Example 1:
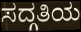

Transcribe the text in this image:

ಸದ್ಗತಿಯ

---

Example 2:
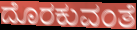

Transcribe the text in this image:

ದೊರಕುವಂತೆ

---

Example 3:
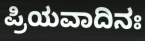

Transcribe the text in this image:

ಪ್ರಿಯವಾದಿನಃ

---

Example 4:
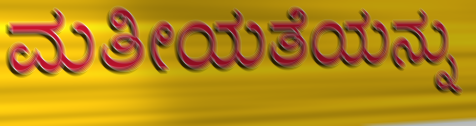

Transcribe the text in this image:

ಮತೀಯತೆಯನ್ನು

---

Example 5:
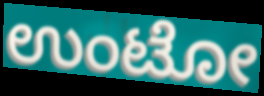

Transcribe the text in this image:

ಉಂಟೋ